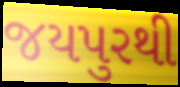
જયપુરથી